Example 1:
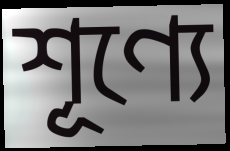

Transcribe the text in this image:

শূণ্যে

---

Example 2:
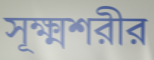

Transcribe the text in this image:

সূক্ষ্মশরীর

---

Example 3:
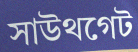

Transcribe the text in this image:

সাউথগেট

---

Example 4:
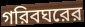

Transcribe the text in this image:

গরিবঘরের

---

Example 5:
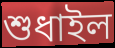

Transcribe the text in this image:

শুধাইল